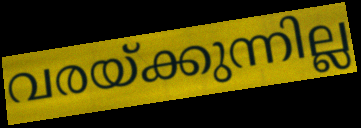
വരയ്ക്കുന്നില്ല